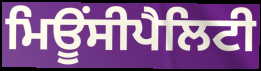
ਮਿਊਂਸੀਪੈਲਿਟੀ